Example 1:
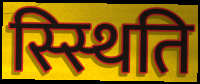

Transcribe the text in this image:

स्स्थिति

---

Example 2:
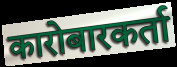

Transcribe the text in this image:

कारोबारकर्ता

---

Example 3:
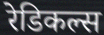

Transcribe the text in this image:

रेडिकल्स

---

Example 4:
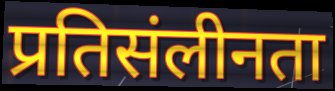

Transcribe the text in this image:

प्रतिसंलीनता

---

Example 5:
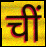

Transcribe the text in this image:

चीं